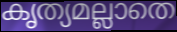
കൃത്യമല്ലാതെ